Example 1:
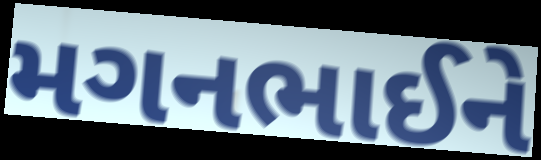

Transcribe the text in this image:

મગનભાઈને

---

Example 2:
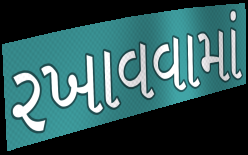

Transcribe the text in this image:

રખાવવામાં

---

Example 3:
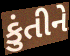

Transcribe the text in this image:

કુંતીને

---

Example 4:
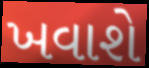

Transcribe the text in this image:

ખવાશે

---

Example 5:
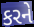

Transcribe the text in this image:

કરને